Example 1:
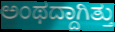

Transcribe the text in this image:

ಅಂಥದ್ದಾಗಿತ್ತು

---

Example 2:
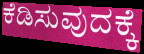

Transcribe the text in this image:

ಕೆಡಿಸುವುದಕ್ಕೆ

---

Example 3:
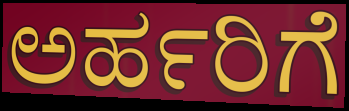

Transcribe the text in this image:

ಅರ್ಹರಿಗೆ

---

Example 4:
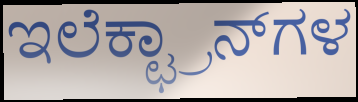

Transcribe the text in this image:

ಇಲೆಕ್ಟ್ರಾನ್‍ಗಳ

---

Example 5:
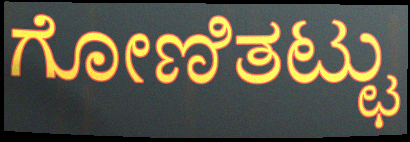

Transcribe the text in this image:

ಗೋಣಿತಟ್ಟು